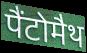
पैंटोमैथ